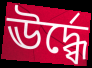
ঊর্দ্ধ্বে